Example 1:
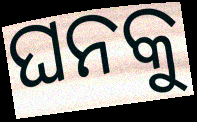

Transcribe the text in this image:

ଘନକୁ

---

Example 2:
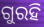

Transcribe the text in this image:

ଗୁରହି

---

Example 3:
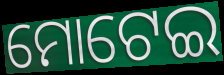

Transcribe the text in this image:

ମୋଟେଇ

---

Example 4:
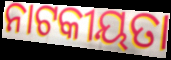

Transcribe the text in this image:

ନାଟକୀୟତା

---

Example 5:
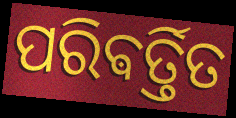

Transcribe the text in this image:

ପରିଵର୍ତ୍ତିତ